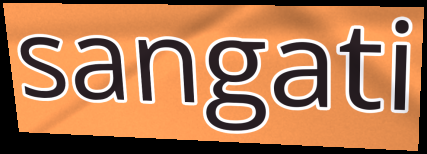
sangati